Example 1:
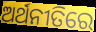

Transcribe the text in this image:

ଅର୍ଥନୀତିରେ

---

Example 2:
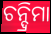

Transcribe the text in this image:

ଚନ୍ଦ୍ରିମା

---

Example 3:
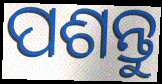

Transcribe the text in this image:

ପଶନ୍ତୁ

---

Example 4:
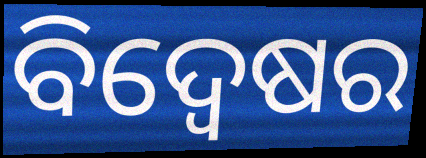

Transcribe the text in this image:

ବିଦ୍ୱେଷର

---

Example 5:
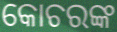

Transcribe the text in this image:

କୋଚରଙ୍କ